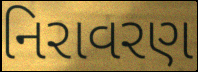
નિરાવરણ